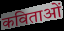
कविताओं